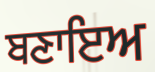
ਬਣਾਇਅ